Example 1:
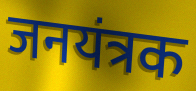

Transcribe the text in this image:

जनयंत्रक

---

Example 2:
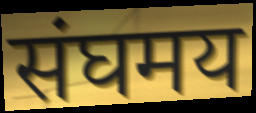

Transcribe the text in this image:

संघमय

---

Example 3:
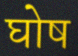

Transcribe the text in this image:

घोष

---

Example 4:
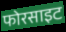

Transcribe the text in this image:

फोरसाइट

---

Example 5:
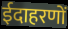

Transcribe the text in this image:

ईदाहरणों